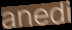
anedi